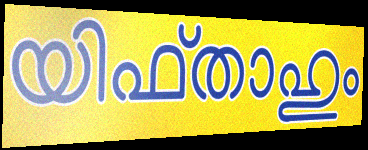
യിഫ്താഹും